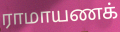
ராமாயணக்